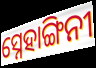
ସ୍ନେହାଙ୍ଗିନୀ